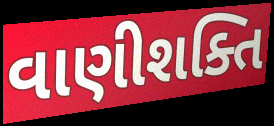
વાણીશક્તિ